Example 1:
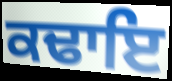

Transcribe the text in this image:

ਕਢਾਇ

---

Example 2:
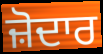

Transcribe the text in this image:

ਜ਼ੋਦਾਰ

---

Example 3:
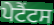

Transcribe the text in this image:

ਪੇਟੈਂਟਸ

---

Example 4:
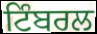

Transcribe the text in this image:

ਟਿੰਬਰਲ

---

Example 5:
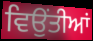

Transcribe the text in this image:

ਵਿਉਂਤੀਆਂ